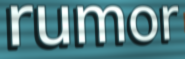
rumor